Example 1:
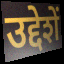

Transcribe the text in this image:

उद्देशें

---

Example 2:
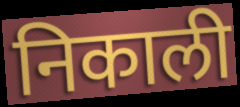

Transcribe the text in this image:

निकाली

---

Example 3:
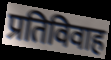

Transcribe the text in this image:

प्रतिविवाह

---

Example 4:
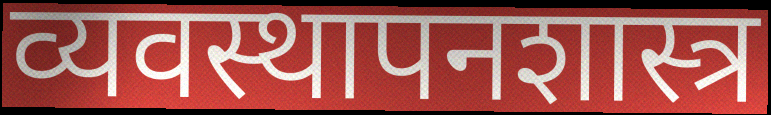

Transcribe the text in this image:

व्यवस्थापनशास्त्र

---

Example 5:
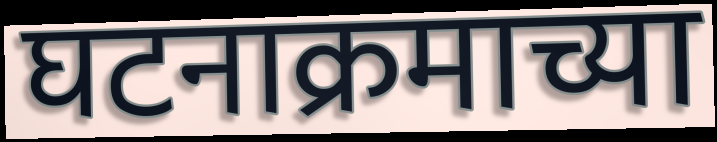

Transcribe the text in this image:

घटनाक्रमाच्या